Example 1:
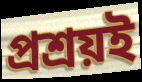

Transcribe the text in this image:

প্রশ্রয়ই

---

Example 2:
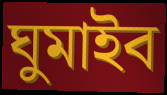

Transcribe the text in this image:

ঘুমাইব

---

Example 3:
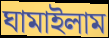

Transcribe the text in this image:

ঘামাইলাম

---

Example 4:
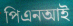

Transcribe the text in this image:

পিএনআই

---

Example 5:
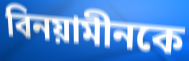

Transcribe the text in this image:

বিনয়ামীনকে